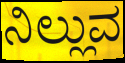
ನಿಲ್ಲುವ